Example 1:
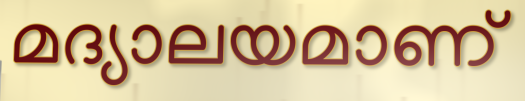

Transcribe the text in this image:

മദ്യാലയമാണ്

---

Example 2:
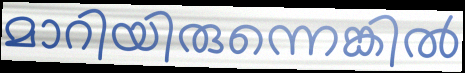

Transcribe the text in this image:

മാറിയിരുന്നെങ്കിൽ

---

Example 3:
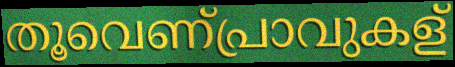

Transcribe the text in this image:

തൂവെണ്പ്രാവുകള്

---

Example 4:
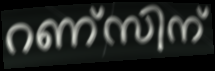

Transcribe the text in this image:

റണ്സിന്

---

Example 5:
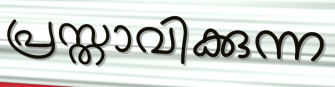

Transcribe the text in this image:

പ്രസ്താവിക്കുന്ന